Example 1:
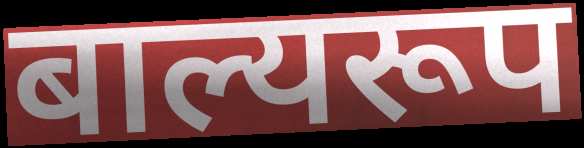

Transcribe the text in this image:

बाल्यरूप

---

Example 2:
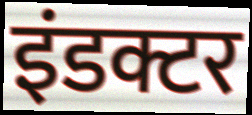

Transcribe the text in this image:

इंडक्टर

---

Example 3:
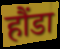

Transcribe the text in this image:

हौंडा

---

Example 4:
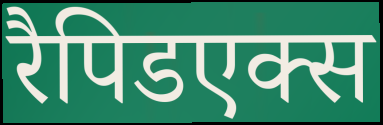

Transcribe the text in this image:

रैपिडएक्स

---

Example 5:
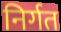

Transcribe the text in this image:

निर्गत